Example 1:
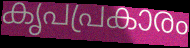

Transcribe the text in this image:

കൃപപ്രകാരം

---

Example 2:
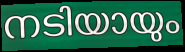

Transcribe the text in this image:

നടിയായും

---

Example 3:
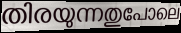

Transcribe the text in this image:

തിരയുന്നതുപോലെ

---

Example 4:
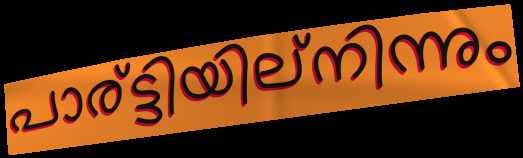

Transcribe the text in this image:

പാര്ട്ടിയില്നിന്നും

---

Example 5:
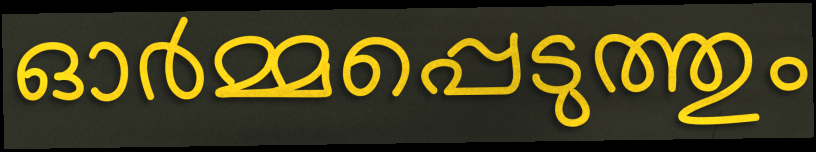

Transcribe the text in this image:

ഓർമ്മപ്പെടുത്തും